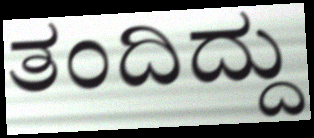
ತಂದಿದ್ದು